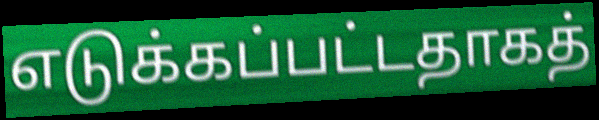
எடுக்கப்பட்டதாகத்